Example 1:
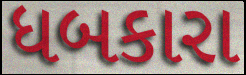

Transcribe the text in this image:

ધબકારા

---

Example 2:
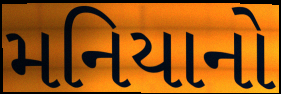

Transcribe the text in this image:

મનિયાનો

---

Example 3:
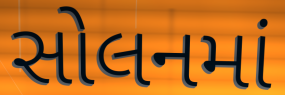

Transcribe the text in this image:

સોલનમાં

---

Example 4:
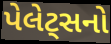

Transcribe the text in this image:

પેલેટ્સનો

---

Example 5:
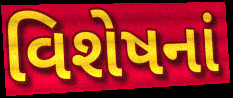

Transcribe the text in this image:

વિશેષનાં